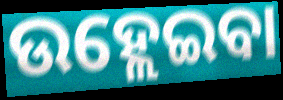
ଉହ୍ଲେଇବା